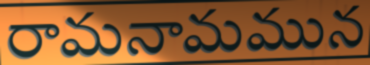
రామనామమున